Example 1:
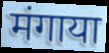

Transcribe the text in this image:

मंगाया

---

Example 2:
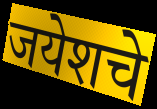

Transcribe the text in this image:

जयेशचे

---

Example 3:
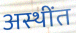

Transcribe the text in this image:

अस्थींत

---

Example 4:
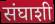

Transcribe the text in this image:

संघाशी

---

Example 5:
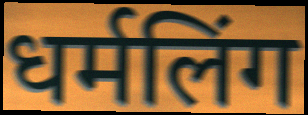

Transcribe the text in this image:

धर्मलिंग